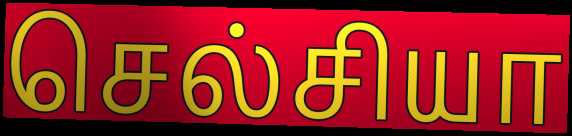
செல்சியா